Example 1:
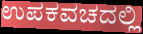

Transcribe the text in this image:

ಉಪಕವಚದಲ್ಲಿ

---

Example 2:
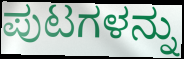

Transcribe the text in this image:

ಪುಟಗಳನ್ನು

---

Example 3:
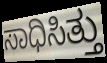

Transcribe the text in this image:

ಸಾಧಿಸಿತ್ತು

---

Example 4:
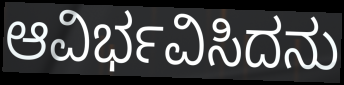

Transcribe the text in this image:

ಆವಿರ್ಭವಿಸಿದನು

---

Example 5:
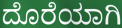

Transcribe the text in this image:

ದೊರೆಯಾಗಿ